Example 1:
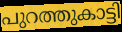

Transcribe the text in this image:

പുറത്തുകാട്ടി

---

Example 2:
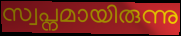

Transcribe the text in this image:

സ്വപ്നമായിരുന്നു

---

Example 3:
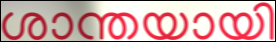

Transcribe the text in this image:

ശാന്തയായി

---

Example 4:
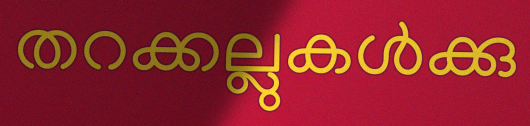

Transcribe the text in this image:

തറക്കല്ലുകൾക്കു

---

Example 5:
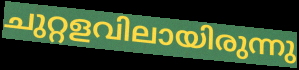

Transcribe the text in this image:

ചുറ്റളവിലായിരുന്നു